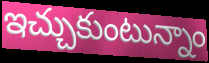
ఇచ్చుకుంటున్నాం